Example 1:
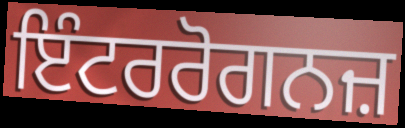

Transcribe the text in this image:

ਇੰਟਰਰੋਗਨਜ਼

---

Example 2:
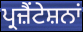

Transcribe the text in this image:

ਪ੍ਰਜ਼ੈਂਟੇਸ਼ਨਾਂ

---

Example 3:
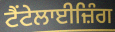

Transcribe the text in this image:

ਟੈਂਟੇਲਾਈਜ਼ਿੰਗ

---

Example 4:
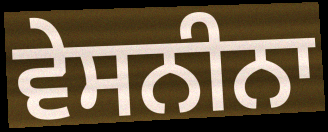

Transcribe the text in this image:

ਵੇਸਨੀਨਾ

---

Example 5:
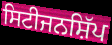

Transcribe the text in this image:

ਸਿਟੀਜਨਸ਼ਿੱਪ